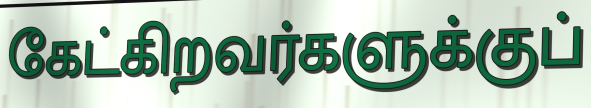
கேட்கிறவர்களுக்குப்